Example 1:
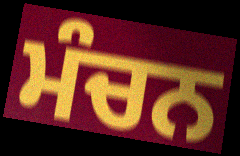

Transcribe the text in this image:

ਮੰਚਨ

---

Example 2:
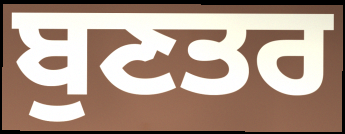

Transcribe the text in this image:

ਬੁਣਤਰ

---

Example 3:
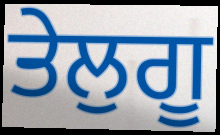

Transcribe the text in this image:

ਤੇਲੁਗੂ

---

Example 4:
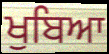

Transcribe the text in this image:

ਖੁਬਿਆ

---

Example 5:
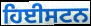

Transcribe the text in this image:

ਹਿਈਸਟਨ